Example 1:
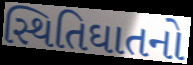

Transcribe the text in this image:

સ્થિતિઘાતનો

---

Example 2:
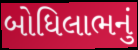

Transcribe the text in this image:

બોધિલાભનું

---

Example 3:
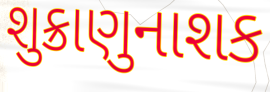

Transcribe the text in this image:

શુક્રાણુનાશક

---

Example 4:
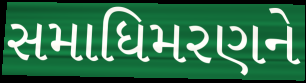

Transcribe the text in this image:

સમાધિમરણને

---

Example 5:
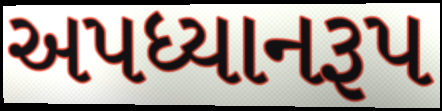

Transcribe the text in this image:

અપધ્યાનરૂપ